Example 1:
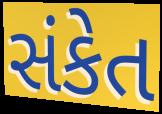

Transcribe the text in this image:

સંકેત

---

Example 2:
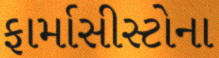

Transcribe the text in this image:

ફાર્માસીસ્ટોના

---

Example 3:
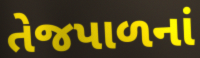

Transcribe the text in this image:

તેજપાળનાં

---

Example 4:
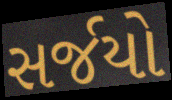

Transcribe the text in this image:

સર્જયો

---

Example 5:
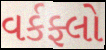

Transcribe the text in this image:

વર્કફ્લો